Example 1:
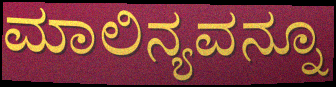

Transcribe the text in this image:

ಮಾಲಿನ್ಯವನ್ನೂ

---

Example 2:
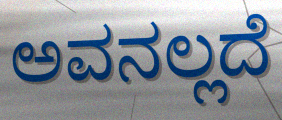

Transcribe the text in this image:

ಅವನಲ್ಲದೆ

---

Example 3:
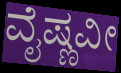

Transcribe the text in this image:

ವೈಷ್ಣವೀ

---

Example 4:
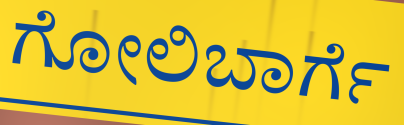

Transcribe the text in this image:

ಗೋಲಿಬಾರ್ಗೆ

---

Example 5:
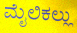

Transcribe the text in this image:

ಮೈಲಿಕಲ್ಲು